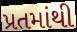
પ્રતમાંથી